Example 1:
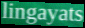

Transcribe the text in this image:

lingayats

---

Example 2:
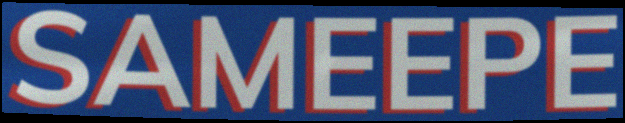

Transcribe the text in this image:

SAMEEPE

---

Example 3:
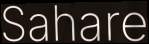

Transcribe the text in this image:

Sahare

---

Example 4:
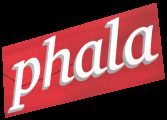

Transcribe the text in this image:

phala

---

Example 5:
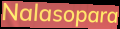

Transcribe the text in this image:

Nalasopara